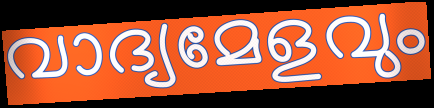
വാദ്യമേളവും